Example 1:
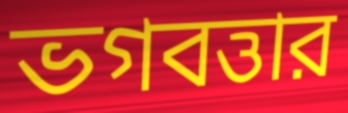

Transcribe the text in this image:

ভগবত্তার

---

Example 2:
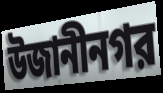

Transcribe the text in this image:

উজানীনগর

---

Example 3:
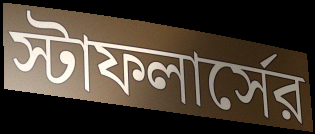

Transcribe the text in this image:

স্টাফলার্সের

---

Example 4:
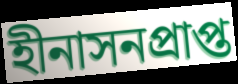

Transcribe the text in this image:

হীনাসনপ্রাপ্ত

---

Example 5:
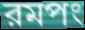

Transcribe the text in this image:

রমপং